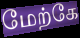
மேற்கே